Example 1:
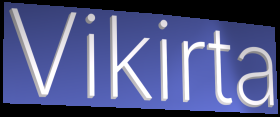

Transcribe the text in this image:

Vikirta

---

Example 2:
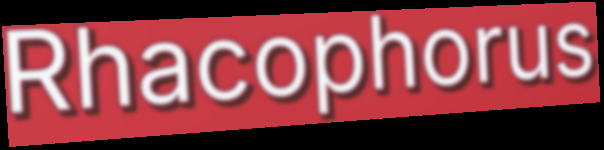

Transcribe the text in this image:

Rhacophorus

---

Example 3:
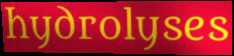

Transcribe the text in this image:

hydrolyses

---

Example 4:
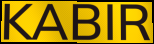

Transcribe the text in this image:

KABIR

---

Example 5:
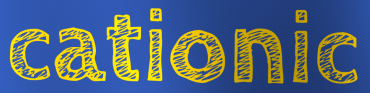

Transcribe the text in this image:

cationic